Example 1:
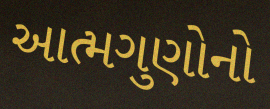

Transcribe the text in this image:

આત્મગુણોનો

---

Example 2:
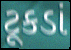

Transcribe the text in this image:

ટૂકડાં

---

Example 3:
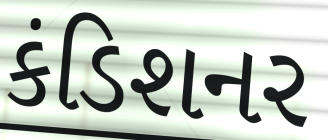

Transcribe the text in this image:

કંડિશનર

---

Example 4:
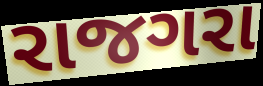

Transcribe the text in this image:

રાજગરા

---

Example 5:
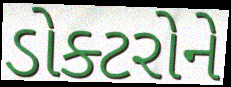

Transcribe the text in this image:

ડોક્ટરોને